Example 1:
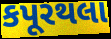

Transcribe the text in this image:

કપૂરથલા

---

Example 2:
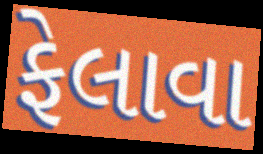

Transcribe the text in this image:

ફેલાવા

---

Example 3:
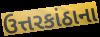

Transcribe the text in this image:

ઉત્તરકાંઠાના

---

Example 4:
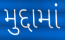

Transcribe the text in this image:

મુદ્દામાં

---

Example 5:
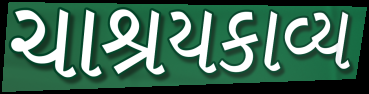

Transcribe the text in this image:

ચાશ્રયકાવ્ય